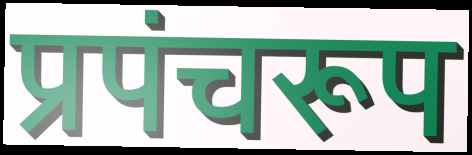
प्रपंचरूप